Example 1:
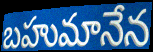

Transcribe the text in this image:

బహుమానేన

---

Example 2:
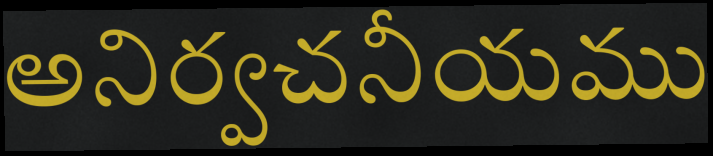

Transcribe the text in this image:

అనిర్వచనీయము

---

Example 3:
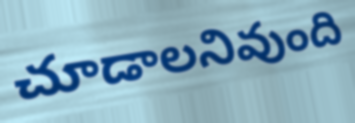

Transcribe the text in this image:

చూడాలనివుంది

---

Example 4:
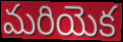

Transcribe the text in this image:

మరియెక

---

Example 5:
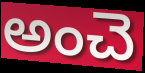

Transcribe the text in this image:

అంచె